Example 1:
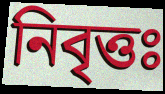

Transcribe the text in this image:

নিবৃত্তঃ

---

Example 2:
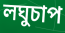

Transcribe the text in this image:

লঘুচাপ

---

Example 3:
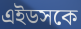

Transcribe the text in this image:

এইডসকে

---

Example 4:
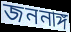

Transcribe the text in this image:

জননাঙ্গ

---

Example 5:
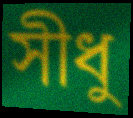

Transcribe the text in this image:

সীধু